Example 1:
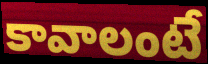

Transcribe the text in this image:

కావాలంటే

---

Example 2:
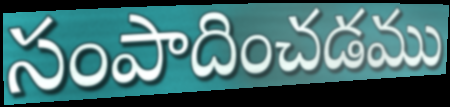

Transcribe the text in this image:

సంపాదించడము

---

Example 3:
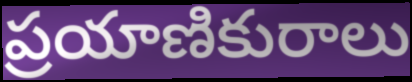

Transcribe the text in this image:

ప్రయాణికురాలు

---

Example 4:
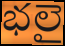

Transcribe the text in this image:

భలై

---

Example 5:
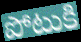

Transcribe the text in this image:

పోటుకి